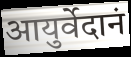
आयुर्वेदानं